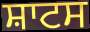
ਸ਼ਾਟਸ